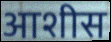
आशीस